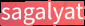
sagalyat